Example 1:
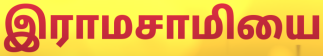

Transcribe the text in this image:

இராமசாமியை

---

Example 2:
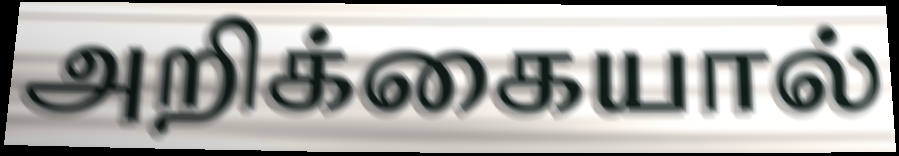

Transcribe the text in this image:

அறிக்கையால்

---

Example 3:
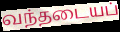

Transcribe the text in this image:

வந்தடையப்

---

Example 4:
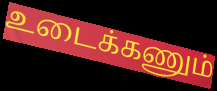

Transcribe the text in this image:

உடைக்கணும்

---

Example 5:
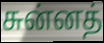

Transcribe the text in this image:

சுன்னத்